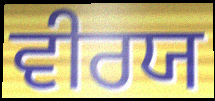
ਵੀਰਯ